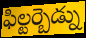
ఫిల్టర్బెడ్ను